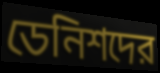
ডেনিশদের